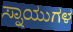
ಸ್ನಾಯುಗಳ